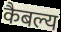
कैबल्य